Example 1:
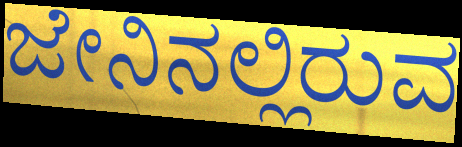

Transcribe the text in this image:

ಜೇನಿನಲ್ಲಿರುವ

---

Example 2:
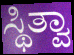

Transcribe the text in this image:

ಸ್ಥಿತ್ವಾ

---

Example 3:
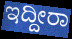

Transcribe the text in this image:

ಇದ್ದೀರಾ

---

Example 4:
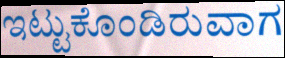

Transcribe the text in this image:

ಇಟ್ಟುಕೊಂಡಿರುವಾಗ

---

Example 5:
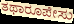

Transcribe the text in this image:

ತಥಾರೂಪೇಸು